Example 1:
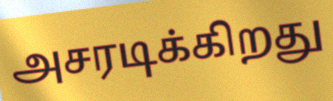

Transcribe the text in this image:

அசரடிக்கிறது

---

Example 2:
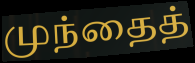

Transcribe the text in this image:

முந்தைத்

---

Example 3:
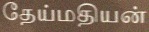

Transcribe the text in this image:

தேய்மதியன்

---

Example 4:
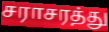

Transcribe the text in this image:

சராசரத்து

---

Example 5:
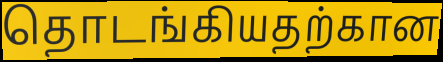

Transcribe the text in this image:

தொடங்கியதற்கான